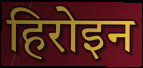
हिरोइन